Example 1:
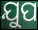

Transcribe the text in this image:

ଯୁପ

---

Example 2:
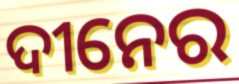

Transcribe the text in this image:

ଦୀନେର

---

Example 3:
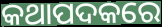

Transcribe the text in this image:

କଥାପଦକରେ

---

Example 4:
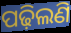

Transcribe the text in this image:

ପଢ଼ିଲଣି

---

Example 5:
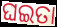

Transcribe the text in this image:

ଘଇତା